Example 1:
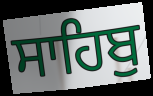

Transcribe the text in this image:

ਸਾਹਿਬੁ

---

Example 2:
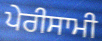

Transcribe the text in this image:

ਪੇਰੀਸਾਮੀ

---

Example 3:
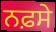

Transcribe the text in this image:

ਨਫ਼ਸੇ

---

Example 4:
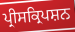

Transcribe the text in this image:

ਪ੍ਰੀਸਕ੍ਰਿਪਸ਼ਨ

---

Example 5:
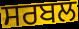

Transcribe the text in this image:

ਸਰਬਲ